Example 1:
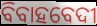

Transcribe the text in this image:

ବିବାହବେଦୀ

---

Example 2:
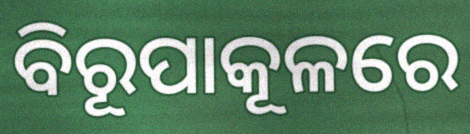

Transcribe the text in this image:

ବିରୂପାକୂଳରେ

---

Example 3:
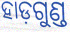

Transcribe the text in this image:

ହାଡ଼ଗୁଣ୍ଡ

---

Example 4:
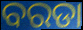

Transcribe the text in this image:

ବରଡା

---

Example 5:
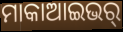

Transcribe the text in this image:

ମାକାଆଇଭର୍